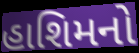
હાશિમનો